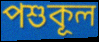
পশুকূল